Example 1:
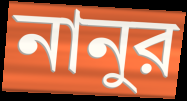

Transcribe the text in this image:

নানুর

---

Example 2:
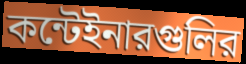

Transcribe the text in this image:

কন্টেইনারগুলির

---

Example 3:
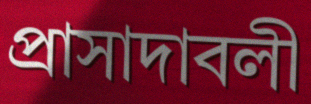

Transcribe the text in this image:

প্রাসাদাবলী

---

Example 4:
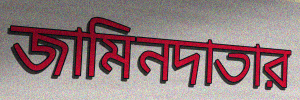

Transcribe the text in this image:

জামিনদাতার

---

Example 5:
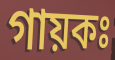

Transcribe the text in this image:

গায়কঃ